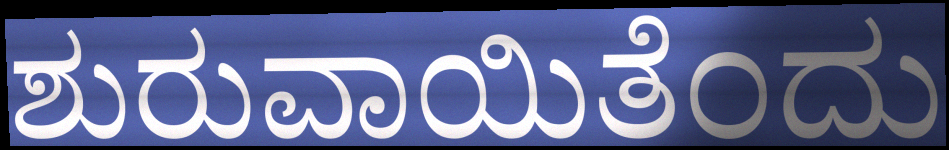
ಶುರುವಾಯಿತೆಂದು